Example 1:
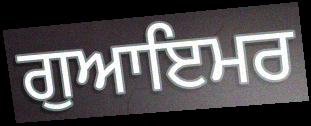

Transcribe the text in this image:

ਗੁਆਇਮਰ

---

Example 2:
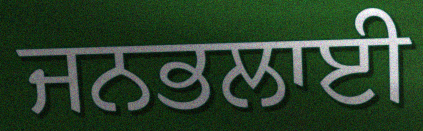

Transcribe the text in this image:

ਜਨਭਲਾਈ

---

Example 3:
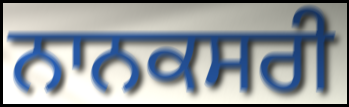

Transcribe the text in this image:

ਨਾਨਕਸਰੀ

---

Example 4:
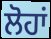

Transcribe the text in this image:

ਲੋਹਾਂ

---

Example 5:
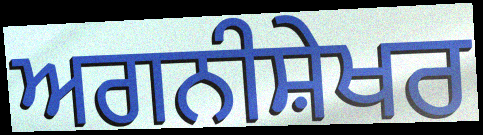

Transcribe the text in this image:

ਅਗਨੀਸ਼ੇਖਰ